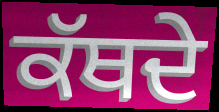
ਕੱਥਦੇ